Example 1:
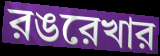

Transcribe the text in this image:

রঙরেখার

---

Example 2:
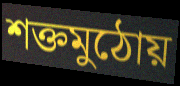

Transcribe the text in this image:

শক্তমুঠোয়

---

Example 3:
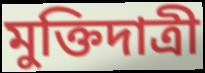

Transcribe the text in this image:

মুক্তিদাত্রী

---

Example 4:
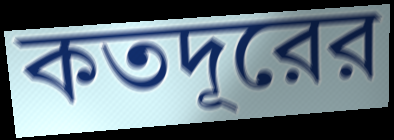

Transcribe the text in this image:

কতদূরের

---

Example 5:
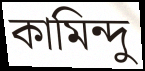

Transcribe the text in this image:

কামিন্দু